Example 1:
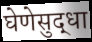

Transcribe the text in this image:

घेणेसुद्धा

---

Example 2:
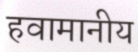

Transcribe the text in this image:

हवामानीय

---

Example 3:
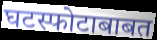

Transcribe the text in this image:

घटस्फोटाबाबत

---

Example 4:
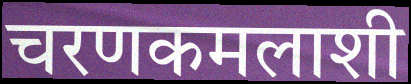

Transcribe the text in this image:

चरणकमलाशी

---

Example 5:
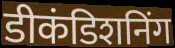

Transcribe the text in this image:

डीकंडिशनिंग